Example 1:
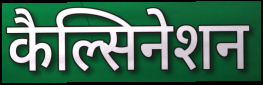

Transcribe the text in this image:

कैल्सिनेशन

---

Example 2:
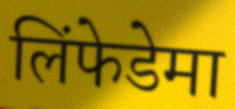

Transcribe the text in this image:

लिंफेडेमा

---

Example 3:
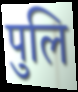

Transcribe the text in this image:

पुलि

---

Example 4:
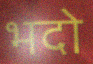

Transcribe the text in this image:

भदो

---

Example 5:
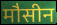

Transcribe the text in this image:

मौसीन